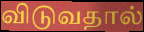
விடுவதால்